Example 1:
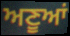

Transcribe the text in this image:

ਅਣੂਆਂ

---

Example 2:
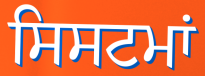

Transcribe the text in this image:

ਸਿਸਟਮਾਂ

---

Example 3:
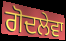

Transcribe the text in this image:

ਗੋਦਲੇਵਾ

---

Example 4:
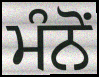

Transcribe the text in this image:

ਮੰਨੋਂ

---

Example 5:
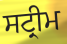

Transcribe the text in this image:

ਸਟ੍ਰੀਮ